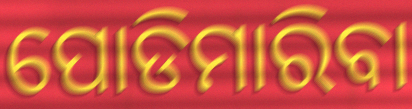
ପୋଡିମାରିବା